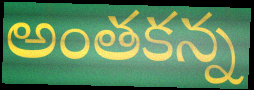
అంతకన్న